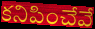
కనిపించేవే